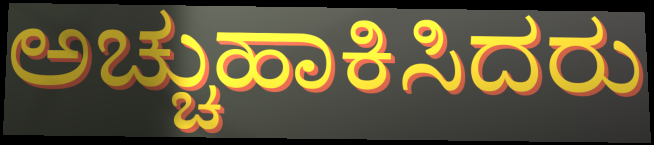
ಅಚ್ಚುಹಾಕಿಸಿದರು